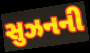
સુઝનની